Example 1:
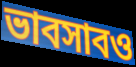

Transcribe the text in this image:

ভাবসাবও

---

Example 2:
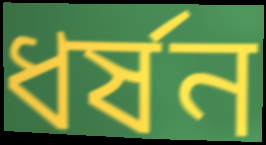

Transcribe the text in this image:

ধর্ষন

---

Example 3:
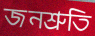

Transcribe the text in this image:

জনশ্রুতি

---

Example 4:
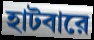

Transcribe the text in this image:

হাটবারে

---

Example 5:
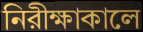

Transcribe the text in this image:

নিরীক্ষাকালে